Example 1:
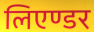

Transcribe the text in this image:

लिएण्डर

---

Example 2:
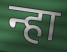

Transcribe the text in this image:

न्हा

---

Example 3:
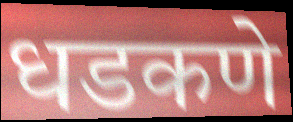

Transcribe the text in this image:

धडकणे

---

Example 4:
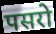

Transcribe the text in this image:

पसरो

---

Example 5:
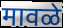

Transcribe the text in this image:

मावळे